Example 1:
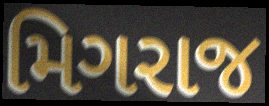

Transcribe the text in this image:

મિગરાજ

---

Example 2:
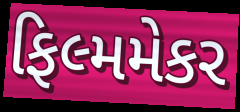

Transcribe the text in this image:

ફિલ્મમેકર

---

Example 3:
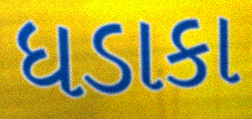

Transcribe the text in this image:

ધડાકા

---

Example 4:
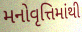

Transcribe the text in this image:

મનોવૃત્તિમાંથી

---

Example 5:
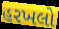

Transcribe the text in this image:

હરખલો